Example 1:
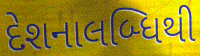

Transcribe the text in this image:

દેશનાલબ્ધિથી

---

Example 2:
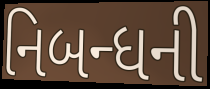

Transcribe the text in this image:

નિબન્ધની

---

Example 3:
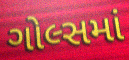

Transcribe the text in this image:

ગોલ્સમાં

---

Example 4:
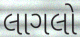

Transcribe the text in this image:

લાગલો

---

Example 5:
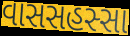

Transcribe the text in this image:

વાસસહસ્સા